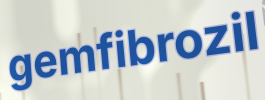
gemfibrozil